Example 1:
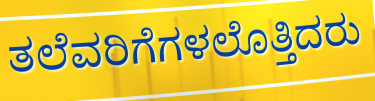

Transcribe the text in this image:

ತಲೆವರಿಗೆಗಳಲೊತ್ತಿದರು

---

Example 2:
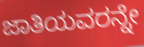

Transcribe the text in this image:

ಜಾತಿಯವರನ್ನೇ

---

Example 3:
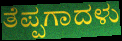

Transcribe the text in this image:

ತೆಪ್ಪಗಾದಳು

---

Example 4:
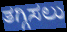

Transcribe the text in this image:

ತಗ್ಗಿಸಲು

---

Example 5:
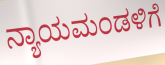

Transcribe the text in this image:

ನ್ಯಾಯಮಂಡಳಿಗೆ